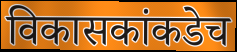
विकासकांकडेच